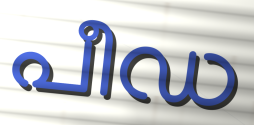
പീഡ